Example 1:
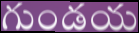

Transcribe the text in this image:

గుండయ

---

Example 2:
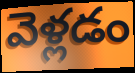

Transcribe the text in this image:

వెళ్లడం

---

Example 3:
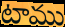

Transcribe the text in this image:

టాము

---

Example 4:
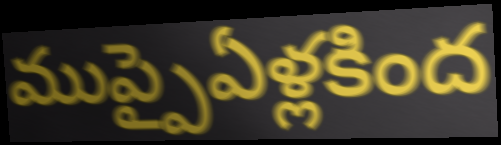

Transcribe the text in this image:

ముప్పైఏళ్లకింద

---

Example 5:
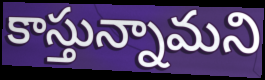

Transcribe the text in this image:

కాస్తున్నామని